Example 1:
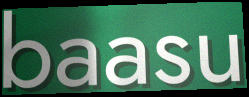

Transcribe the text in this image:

baasu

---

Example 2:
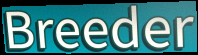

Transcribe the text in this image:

Breeder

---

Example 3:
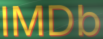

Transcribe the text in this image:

IMDb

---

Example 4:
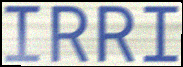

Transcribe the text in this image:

IRRI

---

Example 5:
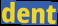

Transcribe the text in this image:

dent